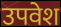
उपवेश